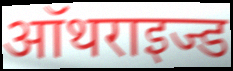
ऑथराइज्ड